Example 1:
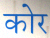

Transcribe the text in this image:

कोर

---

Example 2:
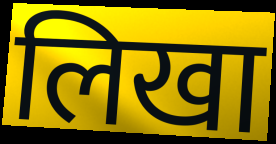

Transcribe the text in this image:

लिखा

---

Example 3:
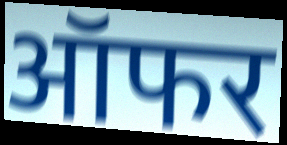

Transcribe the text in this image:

ऑफर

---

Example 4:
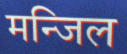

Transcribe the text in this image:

मन्जिल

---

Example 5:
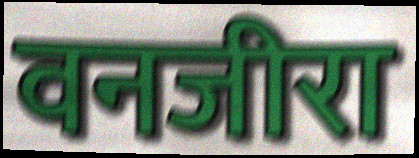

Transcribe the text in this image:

वनजीरा